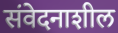
संवेदनाशील